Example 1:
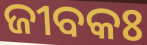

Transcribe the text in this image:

ଜୀବକଃ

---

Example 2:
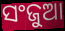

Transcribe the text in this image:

ସଂଜୁଆ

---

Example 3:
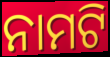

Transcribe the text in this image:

ନାମଟି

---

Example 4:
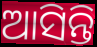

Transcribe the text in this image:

ଆସିନ୍ତି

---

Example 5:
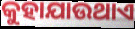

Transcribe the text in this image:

କୁହାଯାଉଥାଏ